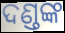
ଦଣ୍ଡଙ୍କ